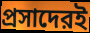
প্রসাদেরই